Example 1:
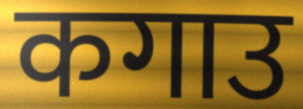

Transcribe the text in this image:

कगाउ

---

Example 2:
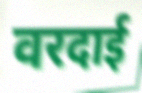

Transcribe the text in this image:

वरदाई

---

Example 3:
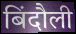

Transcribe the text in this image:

बिंदौली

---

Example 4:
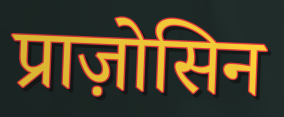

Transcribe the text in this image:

प्राज़ोसिन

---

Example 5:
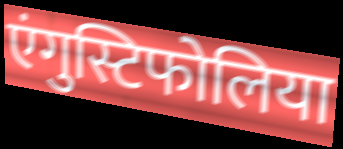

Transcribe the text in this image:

एंगुस्टिफोलिया